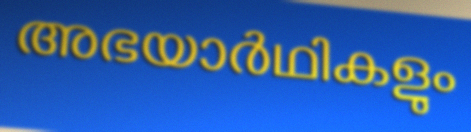
അഭയാർഥികളും